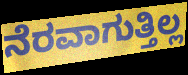
ನೆರವಾಗುತ್ತಿಲ್ಲ